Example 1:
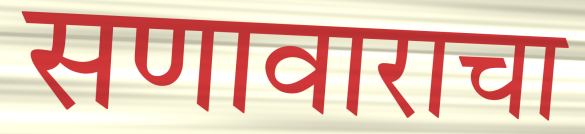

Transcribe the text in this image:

सणावाराचा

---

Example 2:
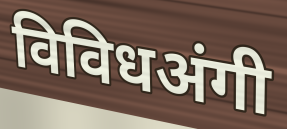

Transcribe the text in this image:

विविधअंगी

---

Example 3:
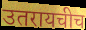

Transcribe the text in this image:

उतरायचीच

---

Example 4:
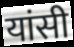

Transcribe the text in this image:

यांसी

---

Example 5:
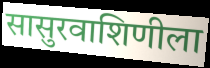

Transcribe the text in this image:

सासुरवाशिणीला